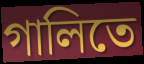
গালিতে